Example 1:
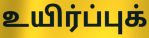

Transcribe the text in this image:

உயிர்ப்புக்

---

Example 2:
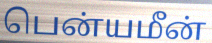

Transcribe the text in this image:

பென்யமீன்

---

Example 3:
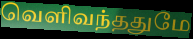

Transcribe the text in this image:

வெளிவந்ததுமே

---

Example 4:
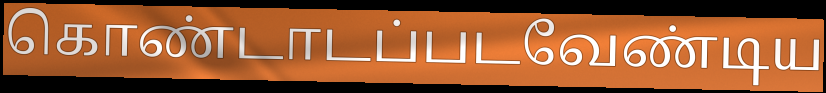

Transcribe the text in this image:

கொண்டாடப்படவேண்டிய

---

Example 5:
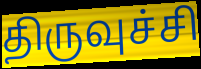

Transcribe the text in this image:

திருவுச்சி